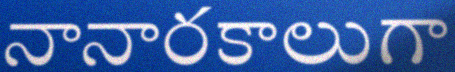
నానారకాలుగా